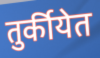
तुर्कीयेत